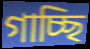
গাচ্ছি